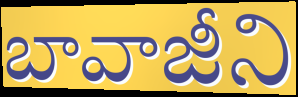
బావాజీని